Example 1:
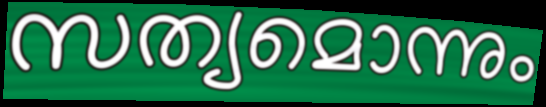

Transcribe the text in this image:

സത്യമൊന്നും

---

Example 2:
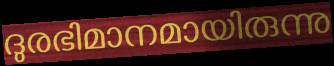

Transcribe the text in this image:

ദുരഭിമാനമായിരുന്നു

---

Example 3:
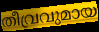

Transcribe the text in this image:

തീവ്രവുമായ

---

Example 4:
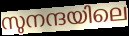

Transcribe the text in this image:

സുനന്ദയിലെ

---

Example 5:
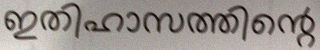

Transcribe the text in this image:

ഇതിഹാസത്തിന്റെ